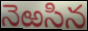
నెఱసిన